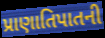
પ્રાણાતિપાતની